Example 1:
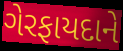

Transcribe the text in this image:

ગેરફાયદાને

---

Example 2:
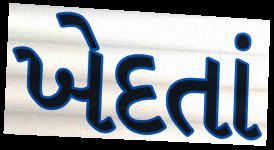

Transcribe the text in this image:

ખેદતાં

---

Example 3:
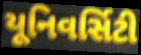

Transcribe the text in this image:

યૂનિવર્સિટી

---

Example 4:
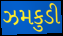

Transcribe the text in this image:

ઝમકુડી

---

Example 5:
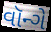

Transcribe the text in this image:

વૉન્ગે